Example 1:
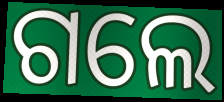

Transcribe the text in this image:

ଗଲେ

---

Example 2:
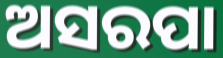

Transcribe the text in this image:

ଅସରପା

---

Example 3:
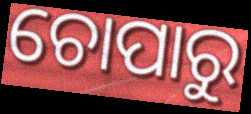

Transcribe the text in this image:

ଚୋପାରୁ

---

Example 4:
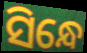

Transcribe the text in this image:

ସିନ୍ଧେ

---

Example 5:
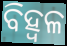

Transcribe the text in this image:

ବିହ୍ଵଳ